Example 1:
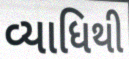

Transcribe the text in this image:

વ્યાધિથી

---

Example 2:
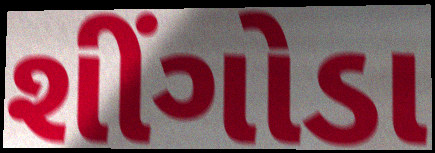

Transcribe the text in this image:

શીંગોડા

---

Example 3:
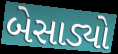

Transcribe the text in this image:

બેસાડ્યો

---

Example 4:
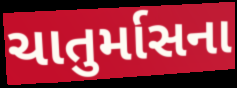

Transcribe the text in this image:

ચાતુર્માસના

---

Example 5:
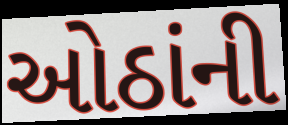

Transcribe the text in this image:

ઓઠાંની